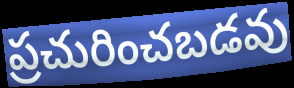
ప్రచురించబడవు